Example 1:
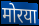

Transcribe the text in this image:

मोरया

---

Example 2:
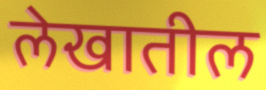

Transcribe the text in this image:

लेखातील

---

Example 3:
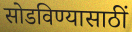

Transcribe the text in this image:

सोडविण्यासाठीं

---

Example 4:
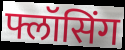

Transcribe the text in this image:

फ्लॉसिंग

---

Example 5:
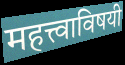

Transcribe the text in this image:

महत्त्वाविषयी